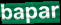
bapar